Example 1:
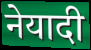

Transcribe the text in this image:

नेयादी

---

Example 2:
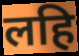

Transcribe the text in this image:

लहि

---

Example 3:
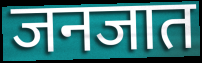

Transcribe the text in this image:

जनजात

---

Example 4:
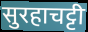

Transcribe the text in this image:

सुरहाचट्टी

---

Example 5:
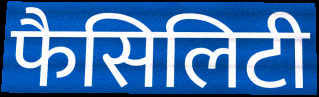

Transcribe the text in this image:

फैसिलिटी